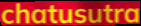
chatusutra